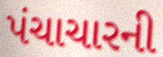
પંચાચારની